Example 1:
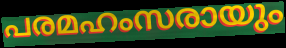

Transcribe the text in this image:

പരമഹംസരായും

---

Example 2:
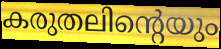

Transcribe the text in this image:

കരുതലിന്റെയും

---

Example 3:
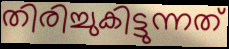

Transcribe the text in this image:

തിരിച്ചുകിട്ടുന്നത്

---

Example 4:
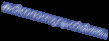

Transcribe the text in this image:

കഠിനദാസ്യവുംനിമിത്തം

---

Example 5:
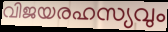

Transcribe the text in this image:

വിജയരഹസ്യവും